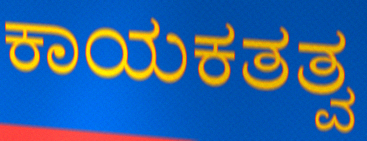
ಕಾಯಕತತ್ವ